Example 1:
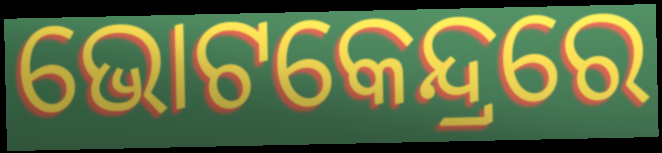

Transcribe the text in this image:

ଭୋଟକେନ୍ଦ୍ରରେ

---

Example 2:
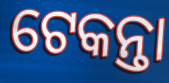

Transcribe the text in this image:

ଟେକନ୍ତା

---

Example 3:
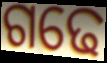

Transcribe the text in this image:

ଗଢେ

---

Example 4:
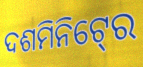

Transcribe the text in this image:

ଦଶମିନିଟ୍‍ରେ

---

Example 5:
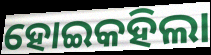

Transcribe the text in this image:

ହୋଇକହିଲା